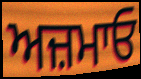
ਅਜ਼ਮਾਓ